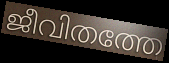
ജീവിതത്തേ